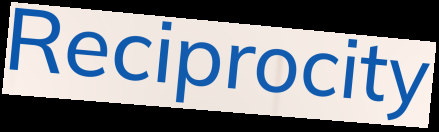
Reciprocity